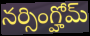
నర్సింగ్హోమ్